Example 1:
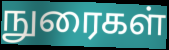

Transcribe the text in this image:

நுரைகள்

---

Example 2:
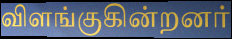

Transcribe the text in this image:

விளங்குகின்றனர்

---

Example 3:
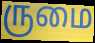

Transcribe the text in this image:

ருமை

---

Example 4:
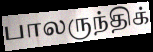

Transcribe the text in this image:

பாலருந்திக்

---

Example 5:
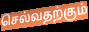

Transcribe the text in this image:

செல்வதற்கும்